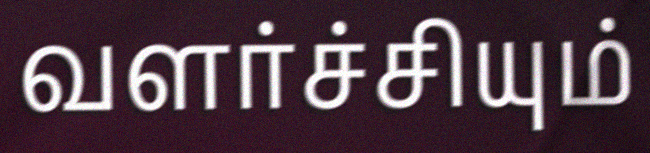
வளர்ச்சியும்